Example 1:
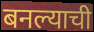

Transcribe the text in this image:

बनल्याची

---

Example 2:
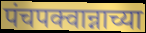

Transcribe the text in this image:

पंचपक्वान्नाच्या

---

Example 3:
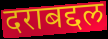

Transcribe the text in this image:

दराबद्दल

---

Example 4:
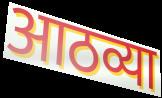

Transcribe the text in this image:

आठव्या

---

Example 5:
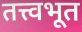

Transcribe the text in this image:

तत्त्वभूत